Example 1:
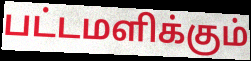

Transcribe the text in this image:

பட்டமளிக்கும்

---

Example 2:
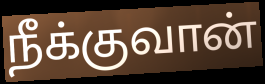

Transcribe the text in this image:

நீக்குவான்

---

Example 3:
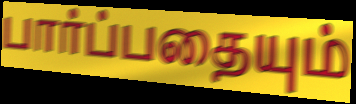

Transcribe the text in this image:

பார்ப்பதையும்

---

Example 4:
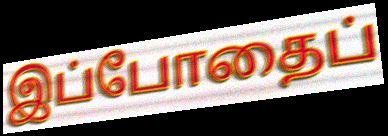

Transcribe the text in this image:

இப்போதைப்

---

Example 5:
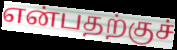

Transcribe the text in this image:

என்பதற்குச்